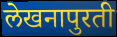
लेखनापुरती